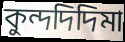
কুন্দদিদিমা